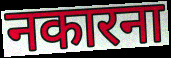
नकारना